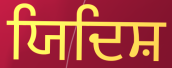
ਯਿਦਿਸ਼